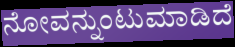
ನೋವನ್ನುಂಟುಮಾಡಿದೆ